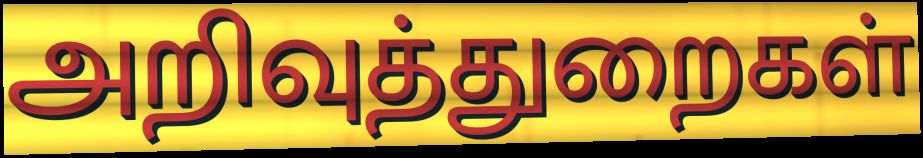
அறிவுத்துறைகள்